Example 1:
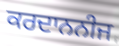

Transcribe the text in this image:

ਕਰਦਾਨਨੀਜ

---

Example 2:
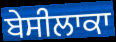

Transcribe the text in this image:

ਬੇਸੀਲਾਕਾ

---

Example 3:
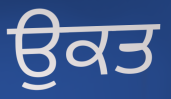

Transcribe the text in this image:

ਉੁਕਤ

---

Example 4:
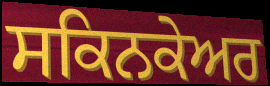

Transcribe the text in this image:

ਸਕਿਨਕੇਅਰ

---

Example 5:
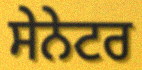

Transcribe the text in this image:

ਸੇਨੇਟਰ